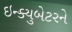
ઇન્ક્યુબેટરને